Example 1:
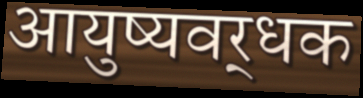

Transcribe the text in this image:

आयुष्यवर्धक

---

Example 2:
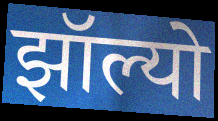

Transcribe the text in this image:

झॉल्यो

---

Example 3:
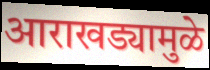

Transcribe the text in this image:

आराखड्यामुळे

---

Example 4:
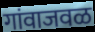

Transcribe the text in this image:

गांवाजवळ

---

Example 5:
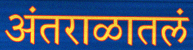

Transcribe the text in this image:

अंतराळातलं